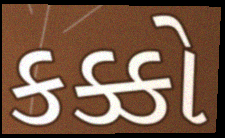
કક્કો